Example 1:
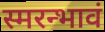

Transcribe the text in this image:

स्मरन्भावं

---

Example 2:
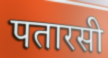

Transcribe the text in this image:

पतारसी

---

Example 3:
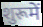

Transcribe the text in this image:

शुरूमें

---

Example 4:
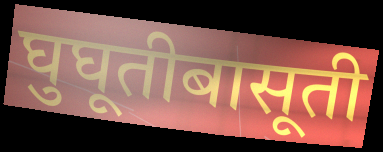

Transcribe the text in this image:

घुघूतीबासूती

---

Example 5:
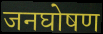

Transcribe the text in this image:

जनघोषण